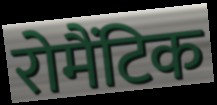
रोमैंटिक